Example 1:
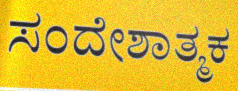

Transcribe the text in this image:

ಸಂದೇಶಾತ್ಮಕ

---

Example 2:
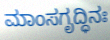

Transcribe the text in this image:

ಮಾಂಸಗೃದ್ಧಿನಃ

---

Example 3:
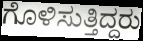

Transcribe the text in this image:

ಗೊಳಿಸುತ್ತಿದ್ದರು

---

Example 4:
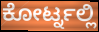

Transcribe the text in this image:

ಕೋರ್ಟ್ನಲ್ಲಿ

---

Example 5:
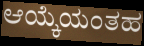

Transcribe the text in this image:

ಆಯ್ಕೆಯಂತಹ